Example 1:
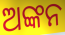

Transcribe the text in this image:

ଅଙ୍କନ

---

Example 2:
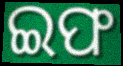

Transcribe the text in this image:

ଇଫ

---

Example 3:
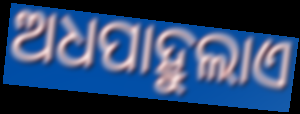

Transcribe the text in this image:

ଅଧପାହୁଲାଏ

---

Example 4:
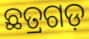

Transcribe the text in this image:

ଛତ୍ରଗଡ଼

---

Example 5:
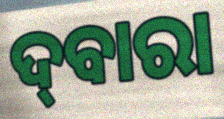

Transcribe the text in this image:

ଦ୍‌ବାରା